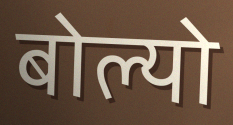
बोल्यो